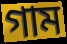
গাম